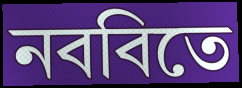
নববিতে